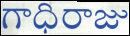
గాధిరాజు